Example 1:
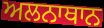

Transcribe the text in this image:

ਅਲਨਾਥਾਨ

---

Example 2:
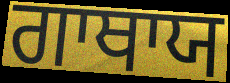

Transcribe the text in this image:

ਗਾਥਾਯ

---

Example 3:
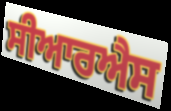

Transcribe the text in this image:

ਸੀਆਰਐਸ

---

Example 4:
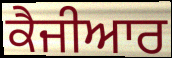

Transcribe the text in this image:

ਕੈਜੀਆਰ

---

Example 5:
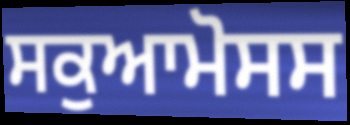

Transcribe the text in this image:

ਸਕੁਆਮੋਸਸ